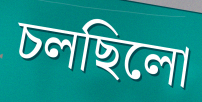
চলছিলো